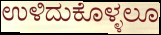
ಉಳಿದುಕೊಳ್ಳಲೂ